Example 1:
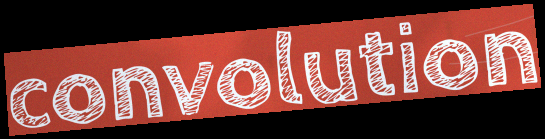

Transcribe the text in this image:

convolution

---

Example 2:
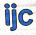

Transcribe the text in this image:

ijc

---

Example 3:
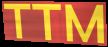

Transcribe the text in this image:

TTM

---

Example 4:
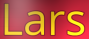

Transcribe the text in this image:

Lars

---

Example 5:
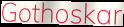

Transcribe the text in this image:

Gothoskar